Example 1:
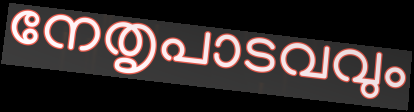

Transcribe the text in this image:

നേതൃപാടവവും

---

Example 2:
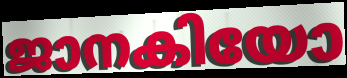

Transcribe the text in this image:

ജാനകിയോ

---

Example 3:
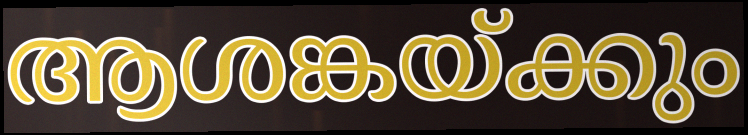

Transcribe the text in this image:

ആശങ്കയ്ക്കും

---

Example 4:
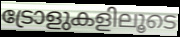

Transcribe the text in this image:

ട്രോളുകളിലൂടെ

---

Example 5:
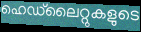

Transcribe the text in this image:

ഹെഡ്‌ലൈറ്റുകളുടെ